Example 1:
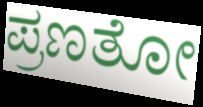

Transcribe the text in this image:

ಪ್ರಣತೋ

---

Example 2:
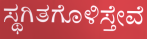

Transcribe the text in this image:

ಸ್ಥಗಿತಗೊಳಿಸ್ತೇವೆ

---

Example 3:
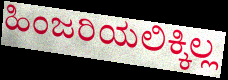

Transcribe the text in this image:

ಹಿಂಜರಿಯಲಿಕ್ಕಿಲ್ಲ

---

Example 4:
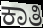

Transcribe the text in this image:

ಕಾತಿ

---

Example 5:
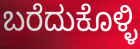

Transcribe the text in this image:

ಬರೆದುಕೊಳ್ಳಿ